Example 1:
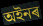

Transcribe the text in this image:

অইনৰ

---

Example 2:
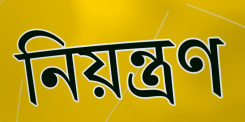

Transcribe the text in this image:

নিয়ন্ত্ৰণ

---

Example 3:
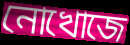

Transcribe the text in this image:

নোখোজে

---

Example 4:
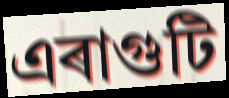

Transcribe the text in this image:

এৰাগুটি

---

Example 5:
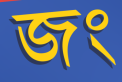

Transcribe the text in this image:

জং